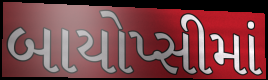
બાયોપ્સીમાં